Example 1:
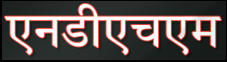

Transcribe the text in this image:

एनडीएचएम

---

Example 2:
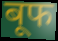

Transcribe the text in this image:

बूफ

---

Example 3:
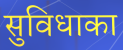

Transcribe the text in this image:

सुविधाका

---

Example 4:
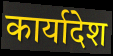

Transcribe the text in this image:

कार्यादेश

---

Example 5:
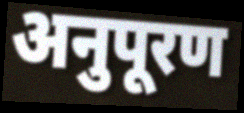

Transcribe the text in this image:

अनुपूरण